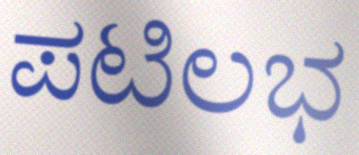
ಪಟಿಲಭ